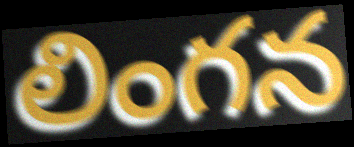
లింగన